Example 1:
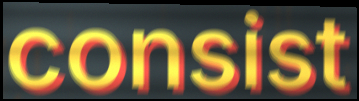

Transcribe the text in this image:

consist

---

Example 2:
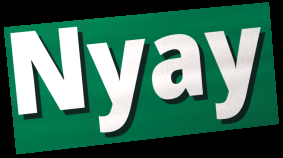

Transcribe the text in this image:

Nyay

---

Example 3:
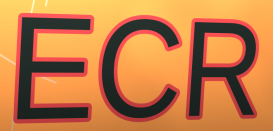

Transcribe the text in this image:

ECR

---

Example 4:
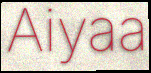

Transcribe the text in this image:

Aiyaa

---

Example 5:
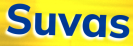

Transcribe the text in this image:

Suvas